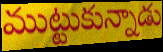
ముట్టుకున్నాడు